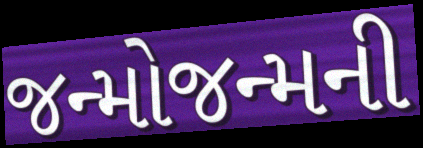
જન્મોજન્મની